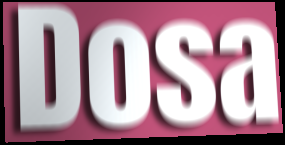
Dosa